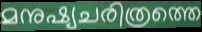
മനുഷ്യചരിത്രത്തെ